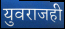
युवराजही